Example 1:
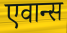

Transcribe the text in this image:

एवान्स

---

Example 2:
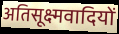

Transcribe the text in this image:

अतिसूक्ष्मवादियों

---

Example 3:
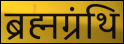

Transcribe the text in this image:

ब्रह्मग्रंथि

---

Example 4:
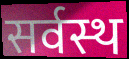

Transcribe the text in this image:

सर्वस्थ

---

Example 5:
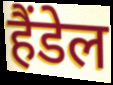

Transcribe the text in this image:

हैंडेल